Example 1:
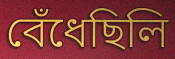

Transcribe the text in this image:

বেঁধেছিলি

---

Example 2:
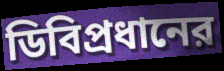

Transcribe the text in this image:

ডিবিপ্রধানের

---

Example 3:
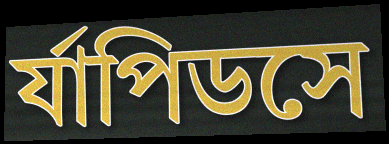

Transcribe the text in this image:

র্যাপিডসে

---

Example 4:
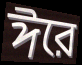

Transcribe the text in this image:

ঈরে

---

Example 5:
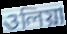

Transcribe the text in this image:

ওলিয়া